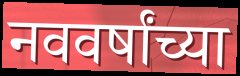
नववर्षांच्या